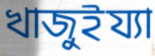
খাজুইয্যা